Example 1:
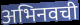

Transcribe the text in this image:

अभिनवची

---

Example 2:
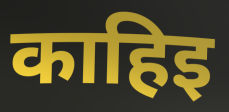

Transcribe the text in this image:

काहिइ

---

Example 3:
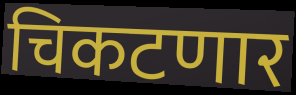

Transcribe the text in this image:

चिकटणार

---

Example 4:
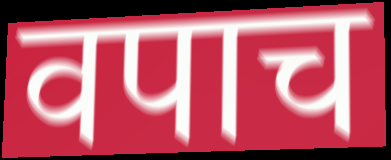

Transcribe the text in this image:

वपाच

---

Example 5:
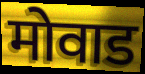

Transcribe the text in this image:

मोवाड